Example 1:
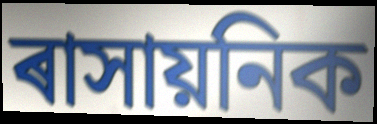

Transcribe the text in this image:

ৰাসায়নিক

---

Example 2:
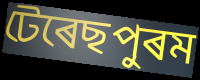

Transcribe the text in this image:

টেৰেছপুৰম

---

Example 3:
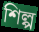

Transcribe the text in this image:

শিল্প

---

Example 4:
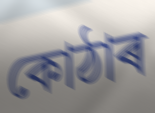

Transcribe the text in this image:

কোঠাৰ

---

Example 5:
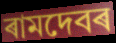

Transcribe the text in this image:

ৰামদেবৰ